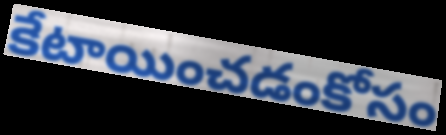
కేటాయించడంకోసం